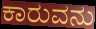
ಕಾರುವನು